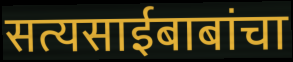
सत्यसाईबाबांचा